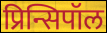
प्रिन्सिपॉल